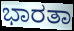
ಭಾರತಾ